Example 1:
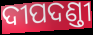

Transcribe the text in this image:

ଦୀପଦଣ୍ଡୀ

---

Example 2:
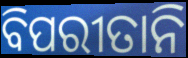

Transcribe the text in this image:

ବିପରୀତାନି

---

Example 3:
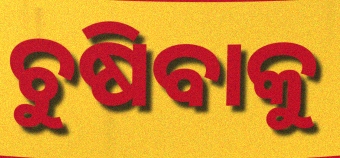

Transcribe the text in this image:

ଚୁଷିବାକୁ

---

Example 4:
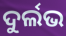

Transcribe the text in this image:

ଦୁର୍ଲଭ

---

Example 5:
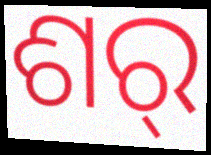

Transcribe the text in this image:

ଶର୍